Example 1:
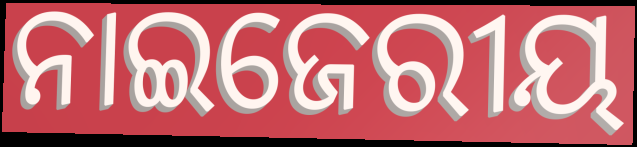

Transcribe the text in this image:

ନାଇଜେରୀୟ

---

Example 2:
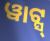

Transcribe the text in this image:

ୱାଟ୍ସ୍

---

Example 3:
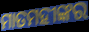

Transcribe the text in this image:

ମାତମହୀଙ୍କର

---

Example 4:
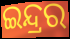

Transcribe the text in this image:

ଇନ୍ଦ୍ରର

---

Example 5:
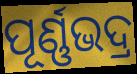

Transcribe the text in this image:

ପୂର୍ଣ୍ଣଭଦ୍ର